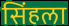
सिंहला